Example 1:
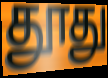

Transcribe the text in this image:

தூது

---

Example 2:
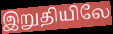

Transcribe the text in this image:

இறுதியிலே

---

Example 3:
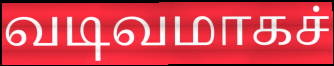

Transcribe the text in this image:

வடிவமாகச்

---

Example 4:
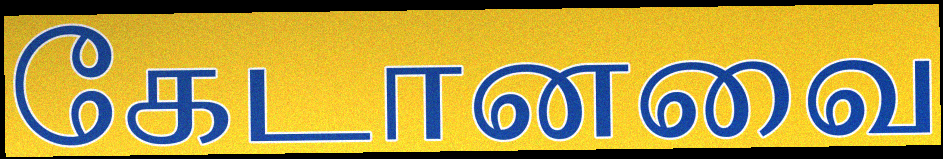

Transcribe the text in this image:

கேடானவை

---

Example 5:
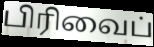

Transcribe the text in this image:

பிரிவைப்